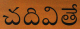
చదివితే